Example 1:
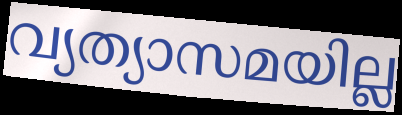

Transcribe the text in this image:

വ്യത്യാസമയില്ല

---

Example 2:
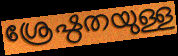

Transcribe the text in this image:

ശ്രേഷ്ഠതയുള്ള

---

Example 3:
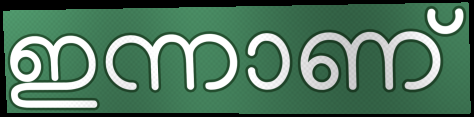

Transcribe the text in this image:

ഇന്നാണ്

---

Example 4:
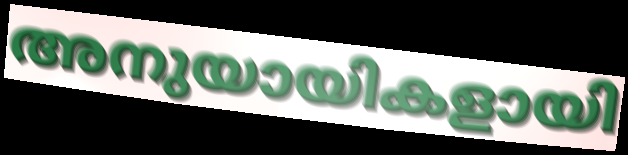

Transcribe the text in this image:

അനുയായികളായി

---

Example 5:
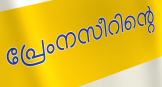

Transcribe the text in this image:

പ്രേംനസീറിന്റെ